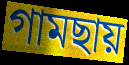
গামছায়